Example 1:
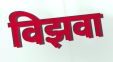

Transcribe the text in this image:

विझवा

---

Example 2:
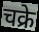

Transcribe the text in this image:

चक्रे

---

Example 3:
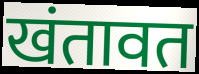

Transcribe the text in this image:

खंतावत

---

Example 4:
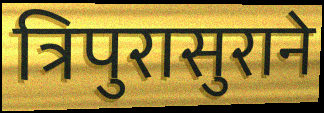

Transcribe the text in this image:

त्रिपुरासुराने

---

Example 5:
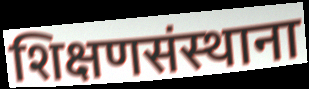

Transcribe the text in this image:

शिक्षणसंस्थाना